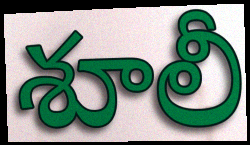
శూలీ